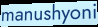
manushyoni